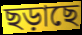
ছড়াছে